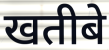
खतीबे